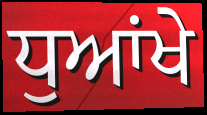
ਧੁਆਂਖੇ